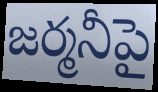
జర్మనీపై